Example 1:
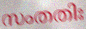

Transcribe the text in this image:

സംതതിഃ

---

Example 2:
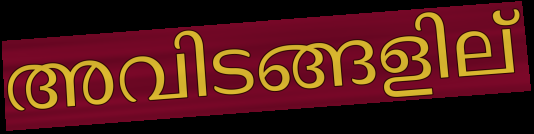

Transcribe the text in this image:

അവിടങ്ങളില്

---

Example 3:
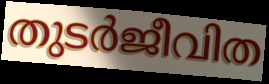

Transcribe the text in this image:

തുടർജീവിത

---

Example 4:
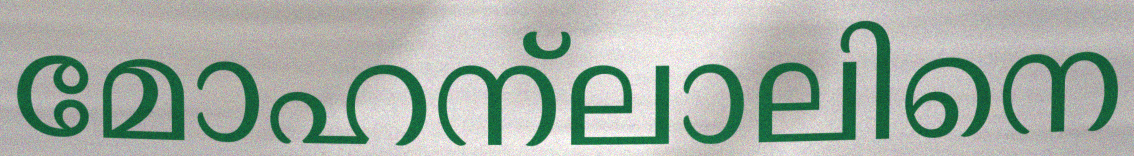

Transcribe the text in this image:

മോഹന്ലാലിനെ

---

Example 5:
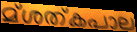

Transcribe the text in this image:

മ്ശത്കപാല